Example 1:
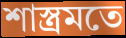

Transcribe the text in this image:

শাস্ত্ৰমতে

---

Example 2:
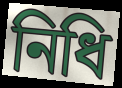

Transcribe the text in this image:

নিধি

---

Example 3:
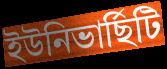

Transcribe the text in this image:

ইউনিভাৰ্ছিটি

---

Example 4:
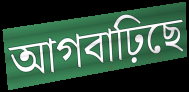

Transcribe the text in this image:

আগবাঢ়িছে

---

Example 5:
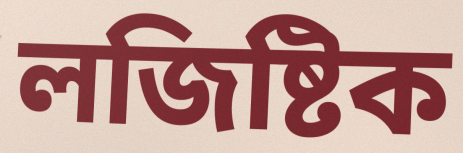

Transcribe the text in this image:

লজিষ্টিক